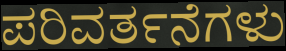
ಪರಿವರ್ತನೆಗಳು